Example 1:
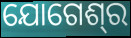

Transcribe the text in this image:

ଯୋଗେଶ୍‍ର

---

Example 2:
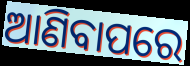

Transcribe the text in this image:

ଆଣିବାପରେ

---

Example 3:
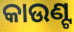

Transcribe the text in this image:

କାଉଣ୍ଟ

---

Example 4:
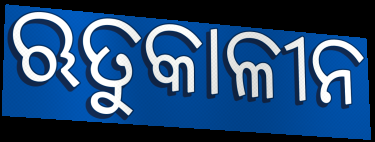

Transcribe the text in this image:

ଋତୁକାଳୀନ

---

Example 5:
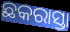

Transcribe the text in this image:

ଛକରାସ୍ତା